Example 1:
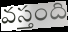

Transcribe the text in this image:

వస్తంది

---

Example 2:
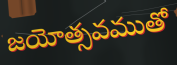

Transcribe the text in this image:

జయోత్సవముతో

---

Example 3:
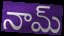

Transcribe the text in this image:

నామ్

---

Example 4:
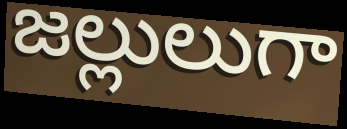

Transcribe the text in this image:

జల్లులుగా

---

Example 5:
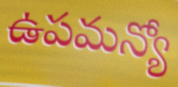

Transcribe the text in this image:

ఉపమన్యో